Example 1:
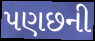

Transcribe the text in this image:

પણછની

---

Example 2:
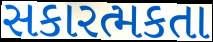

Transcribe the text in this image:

સકારત્મકતા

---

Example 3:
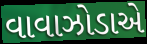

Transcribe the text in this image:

વાવાઝોડાએ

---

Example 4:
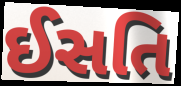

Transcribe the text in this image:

ઈસતિ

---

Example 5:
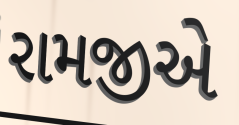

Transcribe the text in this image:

રામજીએ